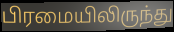
பிரமையிலிருந்து